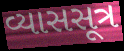
વ્યાસસૂત્ર